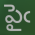
పైఁ